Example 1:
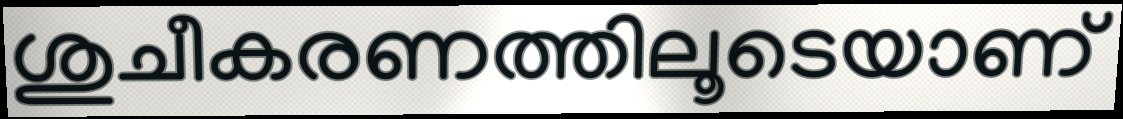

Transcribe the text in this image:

ശുചീകരണത്തിലൂടെയാണ്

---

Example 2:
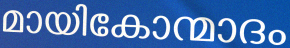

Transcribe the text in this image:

മായികോന്മാദം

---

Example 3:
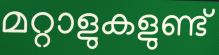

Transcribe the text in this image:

മറ്റാളുകളുണ്ട്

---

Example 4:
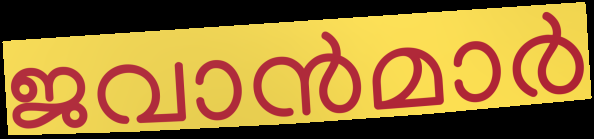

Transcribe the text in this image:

ജവാൻമാർ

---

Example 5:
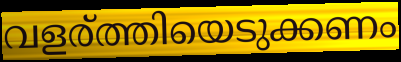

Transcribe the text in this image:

വളര്ത്തിയെടുക്കണം